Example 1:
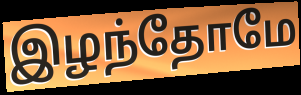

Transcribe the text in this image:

இழந்தோமே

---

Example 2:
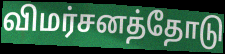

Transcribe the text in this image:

விமர்சனத்தோடு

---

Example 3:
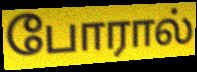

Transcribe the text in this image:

போரால்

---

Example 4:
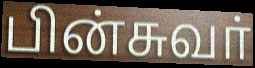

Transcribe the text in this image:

பின்சுவர்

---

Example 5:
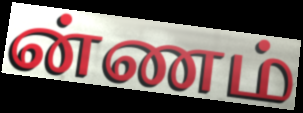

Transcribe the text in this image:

ன்ணம்